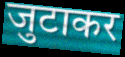
जुटाकर